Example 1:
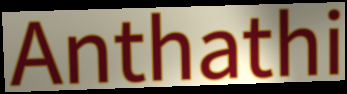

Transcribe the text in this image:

Anthathi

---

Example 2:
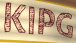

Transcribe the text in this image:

KIPG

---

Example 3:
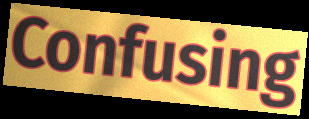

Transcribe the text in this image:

Confusing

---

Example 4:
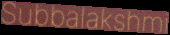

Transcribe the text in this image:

Subbalakshmi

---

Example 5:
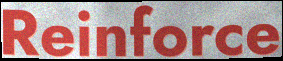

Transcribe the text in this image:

Reinforce